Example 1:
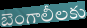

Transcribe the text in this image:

బెంగాలీలకు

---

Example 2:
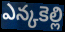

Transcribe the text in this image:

ఎన్కకెల్లి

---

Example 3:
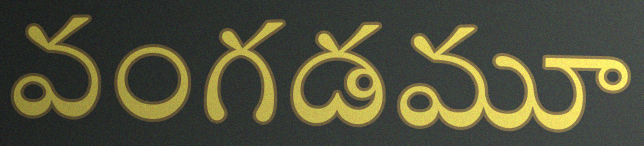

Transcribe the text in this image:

వంగడమూ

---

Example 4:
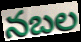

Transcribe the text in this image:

నబల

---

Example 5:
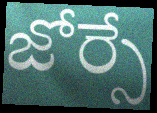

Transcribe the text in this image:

జోర్సే